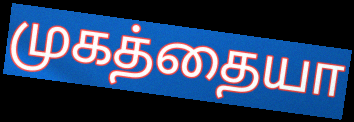
முகத்தையா